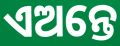
ଏଅନ୍ତେ